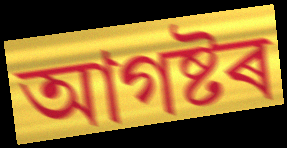
আগষ্টৰ